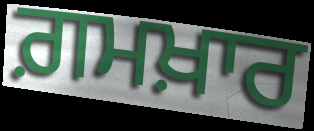
ਗ਼ਮਖ਼ਾਰ